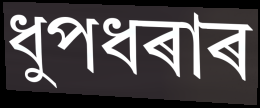
ধুপধৰাৰ